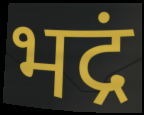
भद्रं